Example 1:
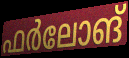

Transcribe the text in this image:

ഫർലോങ്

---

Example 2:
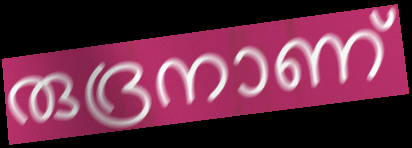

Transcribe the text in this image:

രുദ്രനാണ്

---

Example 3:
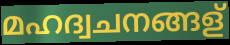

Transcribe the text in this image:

മഹദ്വചനങ്ങള്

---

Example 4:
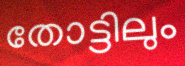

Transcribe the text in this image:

തോട്ടിലും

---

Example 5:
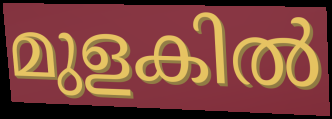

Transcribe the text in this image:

മുളകിൽ